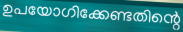
ഉപയോഗിക്കേണ്ടതിന്റെ